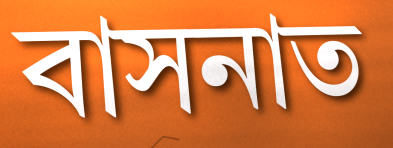
বাসনাত